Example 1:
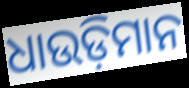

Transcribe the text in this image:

ଧାଉଡ଼ିମାନ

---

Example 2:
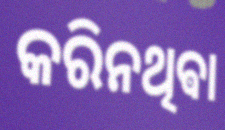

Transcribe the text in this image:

କରିନଥିଵା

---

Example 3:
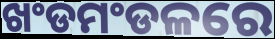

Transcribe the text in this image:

ଖଂଡମଂଡଳରେ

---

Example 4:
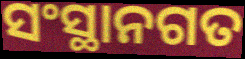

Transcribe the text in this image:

ସଂସ୍ଥାନଗତ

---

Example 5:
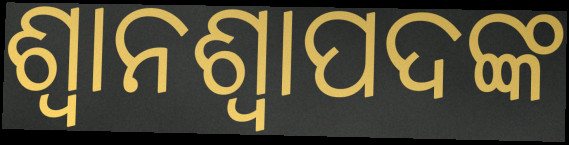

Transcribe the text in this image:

ଶ୍ୱାନଶ୍ୱାପଦଙ୍କ